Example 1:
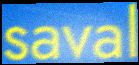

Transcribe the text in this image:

saval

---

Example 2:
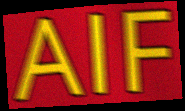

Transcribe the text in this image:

AIF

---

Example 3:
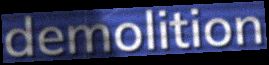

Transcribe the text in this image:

demolition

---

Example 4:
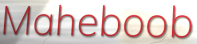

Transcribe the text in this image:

Maheboob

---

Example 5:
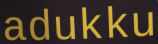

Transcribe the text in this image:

adukku